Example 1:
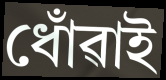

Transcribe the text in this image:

ধোঁৱাই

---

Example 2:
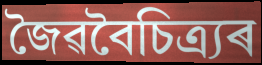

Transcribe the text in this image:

জৈৱবৈচিত্ৰ্যৰ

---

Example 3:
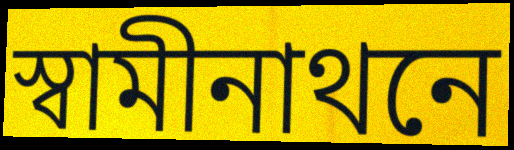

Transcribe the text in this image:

স্বামীনাথনে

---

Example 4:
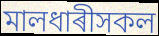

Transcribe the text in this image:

মালধাৰীসকল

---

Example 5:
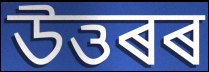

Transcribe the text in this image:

উত্তৰৰ